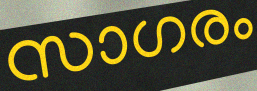
സാഗരം